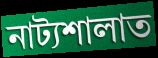
নাট্যশালাত